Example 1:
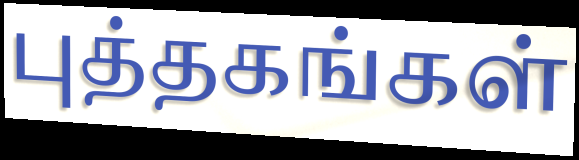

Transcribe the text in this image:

புத்தகங்கள்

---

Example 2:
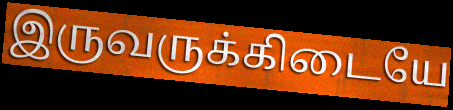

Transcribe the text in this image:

இருவருக்கிடையே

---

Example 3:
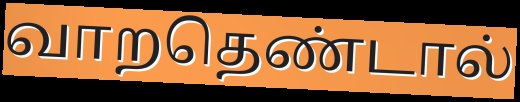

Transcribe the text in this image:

வாறதெண்டால்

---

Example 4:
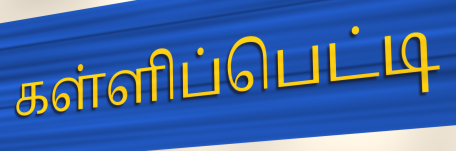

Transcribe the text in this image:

கள்ளிப்பெட்டி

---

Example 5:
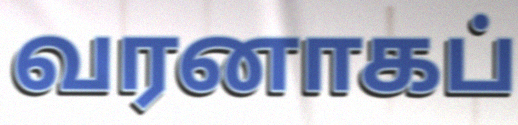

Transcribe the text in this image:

வரனாகப்